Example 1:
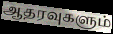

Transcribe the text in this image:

ஆதரவுகளும்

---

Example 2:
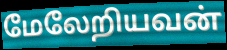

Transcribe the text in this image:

மேலேறியவன்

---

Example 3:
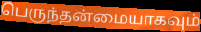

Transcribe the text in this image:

பெருந்தன்மையாகவும்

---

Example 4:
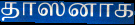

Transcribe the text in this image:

தாஸனாக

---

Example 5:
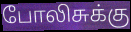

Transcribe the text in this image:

போலிசுக்கு